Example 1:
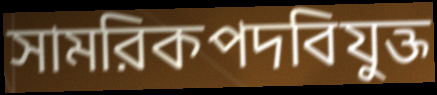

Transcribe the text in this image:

সামরিকপদবিযুক্ত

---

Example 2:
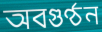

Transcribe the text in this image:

অবগুণ্ঠন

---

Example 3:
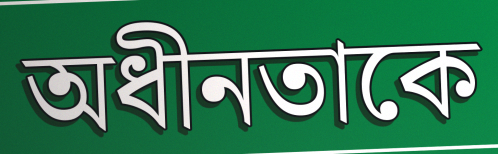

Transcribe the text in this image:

অধীনতাকে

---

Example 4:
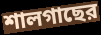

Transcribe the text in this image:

শালগাছের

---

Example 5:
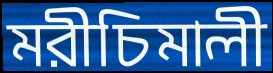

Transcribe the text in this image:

মরীচিমালী